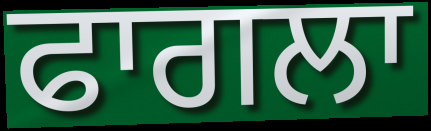
ਫਾਗਲਾ